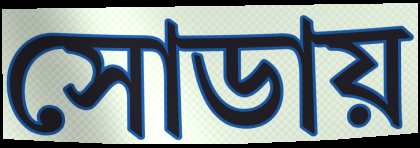
সোডায়